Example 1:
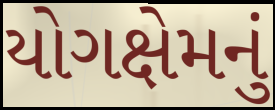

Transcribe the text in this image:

યોગક્ષેમનું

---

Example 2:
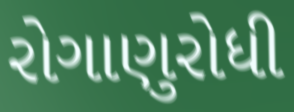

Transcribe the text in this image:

રોગાણુરોધી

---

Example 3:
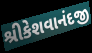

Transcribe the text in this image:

શ્રીકેશવાનંદજી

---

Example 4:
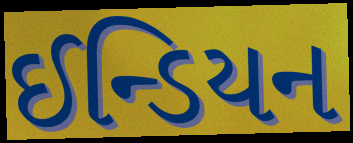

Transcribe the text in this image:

ઈન્ડિયન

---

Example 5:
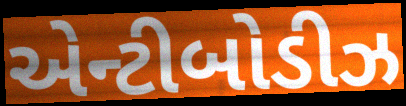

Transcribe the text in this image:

એન્ટીબોડીઝ